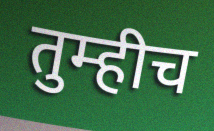
तुम्हीच